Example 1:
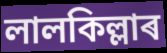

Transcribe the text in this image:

লালকিল্লাৰ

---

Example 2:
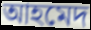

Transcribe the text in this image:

আহমেদ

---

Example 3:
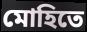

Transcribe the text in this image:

মোহিতে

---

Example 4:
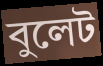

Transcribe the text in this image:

বুলেট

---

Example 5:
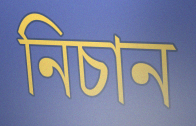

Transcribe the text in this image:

নিচান